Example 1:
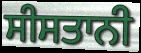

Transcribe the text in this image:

ਸੀਸਤਾਨੀ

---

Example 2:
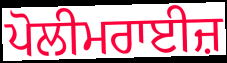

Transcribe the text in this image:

ਪੋਲੀਮਰਾਈਜ਼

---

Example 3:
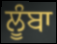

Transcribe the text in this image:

ਲੂੰਬਾ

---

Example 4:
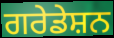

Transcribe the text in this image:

ਗਰੇਡੇਸ਼ਨ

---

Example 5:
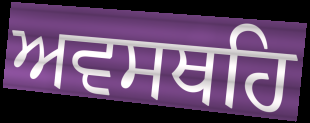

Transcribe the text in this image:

ਅਵਸਥਹਿ